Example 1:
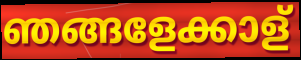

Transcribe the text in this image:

ഞങ്ങളേക്കാള്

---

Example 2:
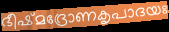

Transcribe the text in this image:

ഭീഷ്മദ്രോണകൃപാദയഃ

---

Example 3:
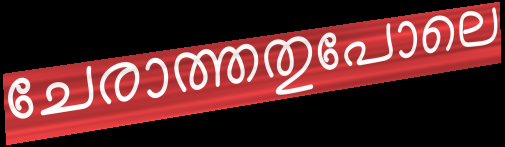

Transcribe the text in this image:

ചേരാത്തതുപോലെ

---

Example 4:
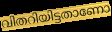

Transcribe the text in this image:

വിതറിയിട്ടതാണോ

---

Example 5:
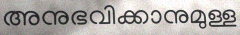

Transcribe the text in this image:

അനുഭവിക്കാനുമുള്ള